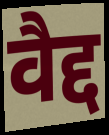
वैद्द